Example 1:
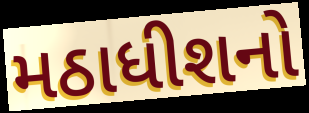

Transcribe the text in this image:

મઠાધીશનો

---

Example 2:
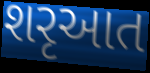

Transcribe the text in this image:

શરૃઆત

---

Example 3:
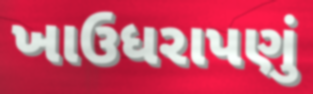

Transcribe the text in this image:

ખાઉધરાપણું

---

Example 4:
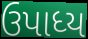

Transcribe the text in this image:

ઉપાધ્ય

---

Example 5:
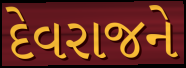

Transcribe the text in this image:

દેવરાજને